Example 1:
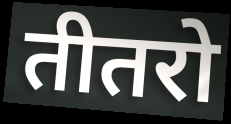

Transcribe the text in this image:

तीतरो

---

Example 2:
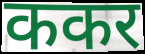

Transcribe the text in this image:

ककर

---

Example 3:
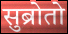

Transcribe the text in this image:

सुब्रोतो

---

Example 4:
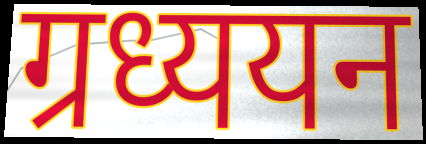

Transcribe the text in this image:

ग्रध्ययन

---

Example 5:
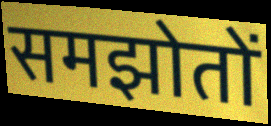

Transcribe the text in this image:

समझोतों